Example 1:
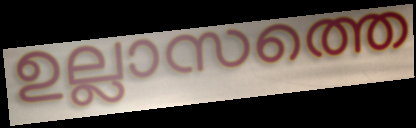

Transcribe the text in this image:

ഉല്ലാസത്തെ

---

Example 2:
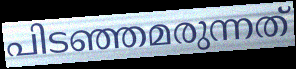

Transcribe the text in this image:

പിടഞ്ഞമരുന്നത്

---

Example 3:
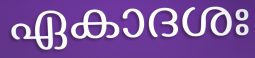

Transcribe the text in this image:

ഏകാദശഃ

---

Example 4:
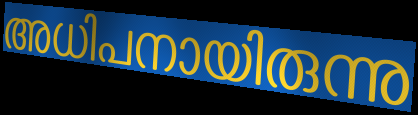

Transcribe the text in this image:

അധിപനായിരുന്നു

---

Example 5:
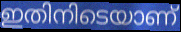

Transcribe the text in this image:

ഇതിനിടെയാണ്